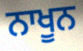
ਨਾਖੂਨ